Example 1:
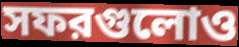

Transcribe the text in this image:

সফরগুলোও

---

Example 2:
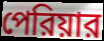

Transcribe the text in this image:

পেরিয়ার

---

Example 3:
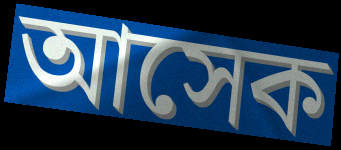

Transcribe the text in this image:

আসেক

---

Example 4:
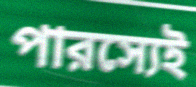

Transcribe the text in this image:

পারস্যেই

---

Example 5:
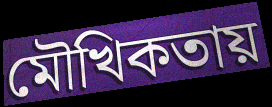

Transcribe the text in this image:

মৌখিকতায়